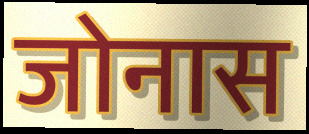
जोनास